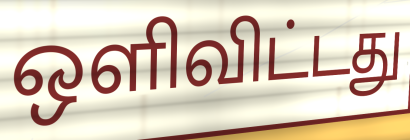
ஒளிவிட்டது